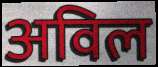
अविल